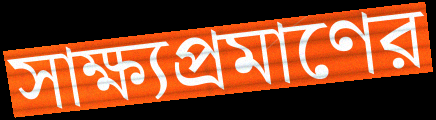
সাক্ষ্যপ্রমাণের